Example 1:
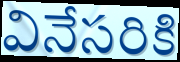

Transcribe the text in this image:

వినేసరికి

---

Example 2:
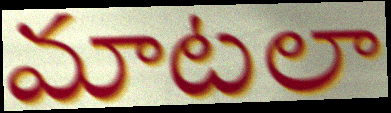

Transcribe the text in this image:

మాటలా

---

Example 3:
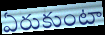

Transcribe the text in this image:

ఏరుకుంటా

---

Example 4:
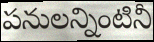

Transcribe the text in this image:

పనులన్నింటినీ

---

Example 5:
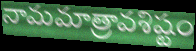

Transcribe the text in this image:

నామమాత్రావశిష్టం